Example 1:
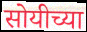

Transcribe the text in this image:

सोयीच्या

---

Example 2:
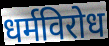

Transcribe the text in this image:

धर्मविरोध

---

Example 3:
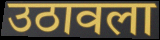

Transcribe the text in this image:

उठावला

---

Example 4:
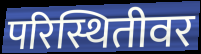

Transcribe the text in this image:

परिस्थितीवर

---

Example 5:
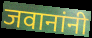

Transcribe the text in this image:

जवानांनी